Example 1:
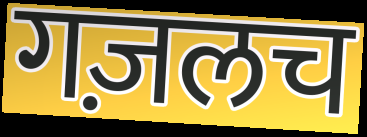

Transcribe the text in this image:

गज़लच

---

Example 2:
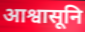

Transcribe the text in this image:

आश्वासूनि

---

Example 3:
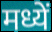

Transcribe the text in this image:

मध्यें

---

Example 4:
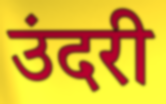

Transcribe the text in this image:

उंदरी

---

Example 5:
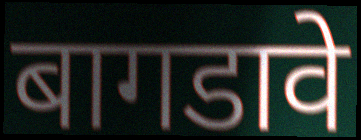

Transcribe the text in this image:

बागडावे